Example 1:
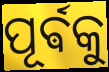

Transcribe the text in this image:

ପୂର୍ଵକୁ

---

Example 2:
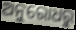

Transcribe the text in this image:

ଅନୁରୋଧରୁ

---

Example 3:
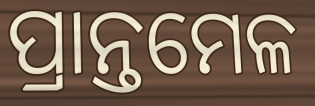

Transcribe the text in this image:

ପ୍ରାନ୍ତମେଳ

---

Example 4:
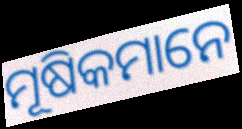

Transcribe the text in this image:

ମୂଷିକମାନେ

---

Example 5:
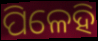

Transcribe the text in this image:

ପିଳେହି